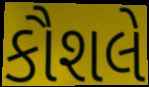
કૌશલે